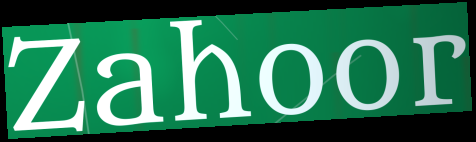
Zahoor